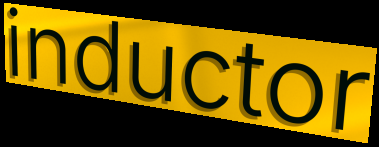
inductor